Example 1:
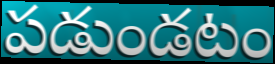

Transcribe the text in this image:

పడుండటం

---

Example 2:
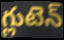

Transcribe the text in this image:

గ్లుటెన్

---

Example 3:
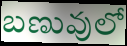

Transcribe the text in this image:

బణువులో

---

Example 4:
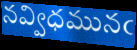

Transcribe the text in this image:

నవ్విధమునఁ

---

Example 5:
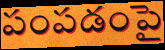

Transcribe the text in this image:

పంపడంపై